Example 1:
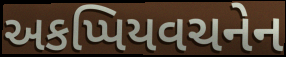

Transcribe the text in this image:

અકપ્પિયવચનેન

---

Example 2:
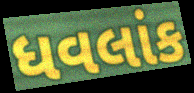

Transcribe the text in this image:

ધવલાંક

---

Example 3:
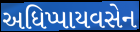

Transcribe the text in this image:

અધિપ્પાયવસેન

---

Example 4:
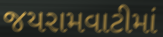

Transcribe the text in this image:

જયરામવાટીમાં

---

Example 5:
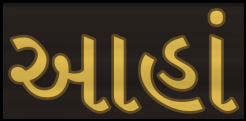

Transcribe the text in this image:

આહાં